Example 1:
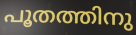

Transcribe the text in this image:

പൂതത്തിനു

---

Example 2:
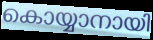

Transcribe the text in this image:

കൊയ്യാനായി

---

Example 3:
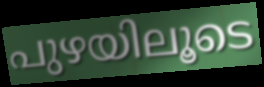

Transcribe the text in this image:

പുഴയിലൂടെ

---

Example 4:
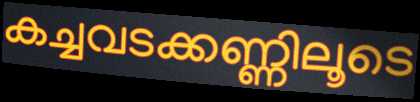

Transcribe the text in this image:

കച്ചവടക്കണ്ണിലൂടെ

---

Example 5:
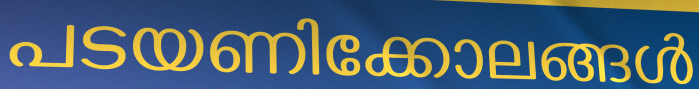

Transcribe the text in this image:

പടയണിക്കോലങ്ങൾ